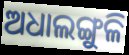
ଅଧାଲଙ୍ଗୁଳି